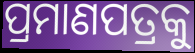
ପ୍ରମାଣପତ୍ରକୁ